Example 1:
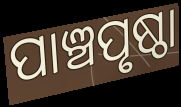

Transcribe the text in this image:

ପାଞ୍ଚପୃଷ୍ଠା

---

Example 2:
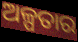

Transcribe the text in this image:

ଅଳ୍ପତାର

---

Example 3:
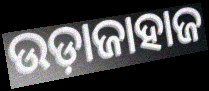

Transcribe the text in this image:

ଉଡ଼ାଜାହାଜ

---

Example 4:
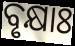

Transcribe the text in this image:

ବୃକ୍ଷାଃ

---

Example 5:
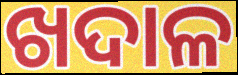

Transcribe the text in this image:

ଖଦାଳ